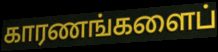
காரணங்களைப்